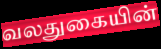
வலதுகையின்